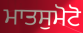
ਮਾਤਸੁਮੋਟੋ